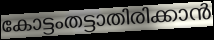
കോട്ടംതട്ടാതിരിക്കാൻ